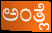
ಅಂತ್ಲೆ